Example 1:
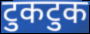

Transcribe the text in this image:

टुकटुक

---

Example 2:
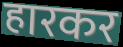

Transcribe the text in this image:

हारकर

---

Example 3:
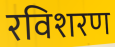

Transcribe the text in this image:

रविशरण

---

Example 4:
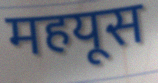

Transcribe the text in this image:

महयूस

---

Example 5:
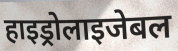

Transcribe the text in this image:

हाइड्रोलाइजेबल